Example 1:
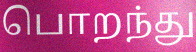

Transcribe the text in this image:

பொறந்து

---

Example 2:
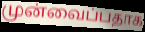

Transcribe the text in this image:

முன்வைப்பதாக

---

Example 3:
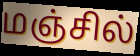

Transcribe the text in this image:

மஞ்சில்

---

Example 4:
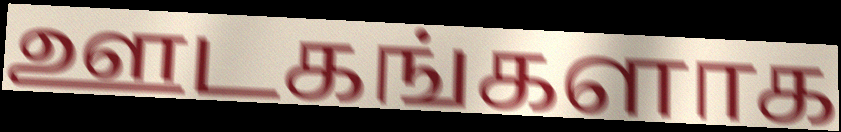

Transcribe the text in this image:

ஊடகங்களாக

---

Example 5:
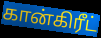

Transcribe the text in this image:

கான்கிரீட்